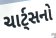
ચાર્ટ્સનો